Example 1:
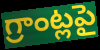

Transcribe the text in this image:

గ్రాంట్లపై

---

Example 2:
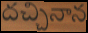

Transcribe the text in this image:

దచ్చినాన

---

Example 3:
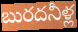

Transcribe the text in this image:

బురదనీళ్ల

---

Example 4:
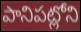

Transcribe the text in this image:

పానిపట్లోని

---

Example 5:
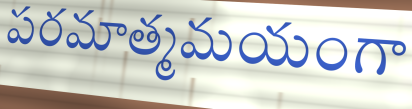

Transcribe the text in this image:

పరమాత్మమయంగా